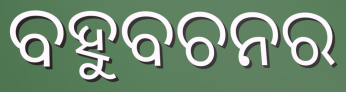
ବହୁବଚନର